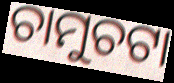
ଚାମୁଚଟା